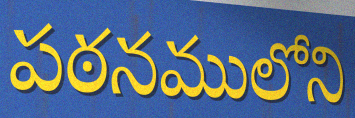
పఠనములోని